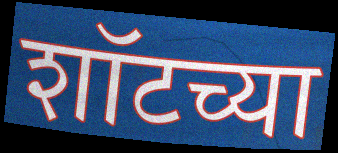
शॉटच्या